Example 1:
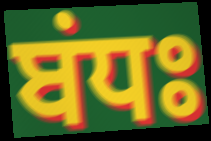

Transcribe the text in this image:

ਬਂਧਃ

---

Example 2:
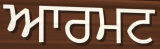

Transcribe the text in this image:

ਆਰਮਟ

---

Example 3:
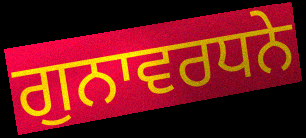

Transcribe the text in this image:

ਗੁਨਾਵਰਧਨੇ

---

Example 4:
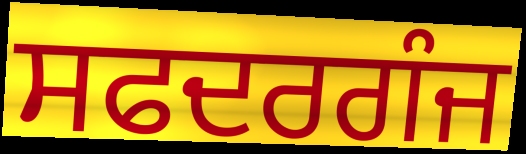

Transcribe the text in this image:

ਸਫਦਰਗੰਜ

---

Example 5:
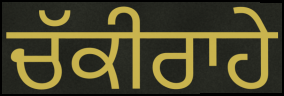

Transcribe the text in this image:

ਚੱਕੀਰਾਹੇ